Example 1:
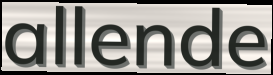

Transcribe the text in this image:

allende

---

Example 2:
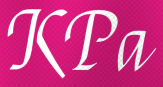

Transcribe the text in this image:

KPa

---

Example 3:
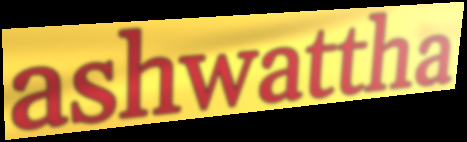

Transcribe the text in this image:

ashwattha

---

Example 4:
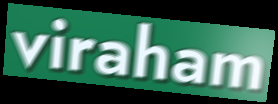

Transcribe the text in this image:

viraham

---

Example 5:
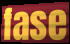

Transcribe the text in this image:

fase